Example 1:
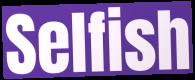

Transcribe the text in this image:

Selfish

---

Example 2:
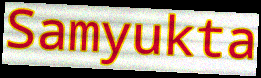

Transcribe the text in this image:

Samyukta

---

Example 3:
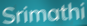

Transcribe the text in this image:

Srimathi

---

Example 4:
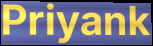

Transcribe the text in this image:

Priyank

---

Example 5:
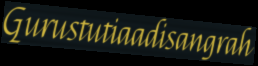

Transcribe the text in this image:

Gurustutiaadisangrah